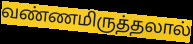
வண்ணமிருத்தலால்